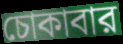
চোকাবার